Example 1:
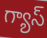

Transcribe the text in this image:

గ్యాస్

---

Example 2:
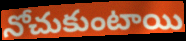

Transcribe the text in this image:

నోచుకుంటాయి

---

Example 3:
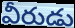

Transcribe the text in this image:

వీరుడు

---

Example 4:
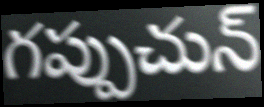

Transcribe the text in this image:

గప్పుచున్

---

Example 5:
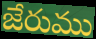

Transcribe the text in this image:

జేరుము